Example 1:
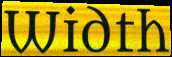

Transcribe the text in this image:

Width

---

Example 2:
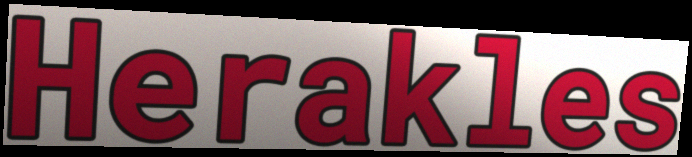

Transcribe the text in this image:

Herakles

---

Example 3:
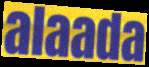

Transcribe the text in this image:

alaada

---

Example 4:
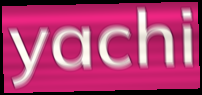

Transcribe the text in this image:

yachi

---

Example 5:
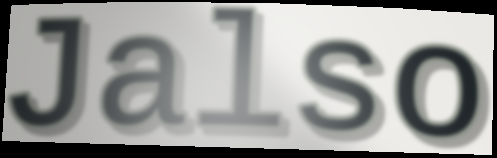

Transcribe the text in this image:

Jalso